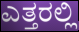
ಎತ್ತರಲ್ಲಿ